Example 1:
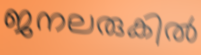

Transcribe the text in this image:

ജനലരുകിൽ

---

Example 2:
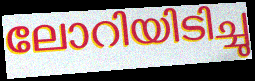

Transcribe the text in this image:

ലോറിയിടിച്ചു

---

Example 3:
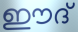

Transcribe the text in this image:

ഈദ്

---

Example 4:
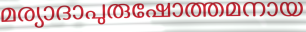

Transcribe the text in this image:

മര്യാദാപുരുഷോത്തമനായ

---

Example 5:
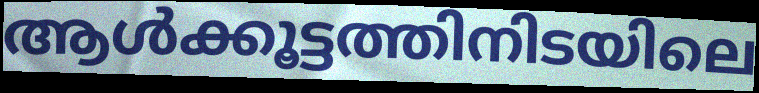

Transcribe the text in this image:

ആൾക്കൂട്ടത്തിനിടയിലെ